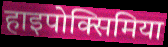
हाइपोक्सिमिया